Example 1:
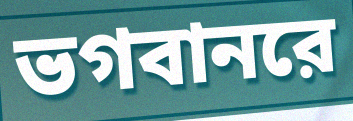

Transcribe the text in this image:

ভগবানরে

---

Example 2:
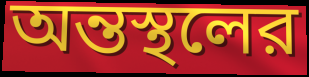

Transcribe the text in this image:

অন্তস্থলের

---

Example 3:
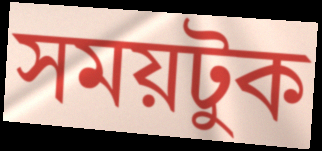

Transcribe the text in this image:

সময়টুক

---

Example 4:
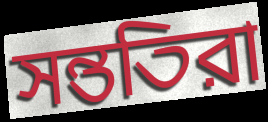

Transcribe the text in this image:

সন্ততিরা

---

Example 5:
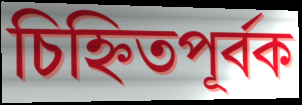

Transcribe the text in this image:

চিহ্নিতপূর্বক